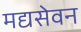
मद्यसेवन